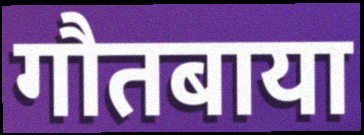
गौतबाया